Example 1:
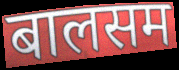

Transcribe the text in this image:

बालसम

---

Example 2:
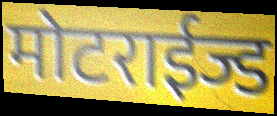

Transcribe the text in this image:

मोटराईज्ड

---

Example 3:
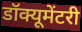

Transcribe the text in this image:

डॉक्यूमेंटरी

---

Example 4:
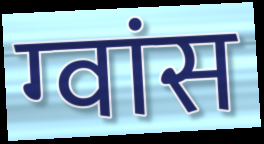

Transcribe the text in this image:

ग्वांस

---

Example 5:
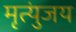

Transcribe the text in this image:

मृत्युंजय